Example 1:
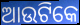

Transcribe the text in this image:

ଆଉଟିକେ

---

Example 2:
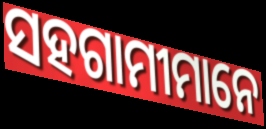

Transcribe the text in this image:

ସହଗାମୀମାନେ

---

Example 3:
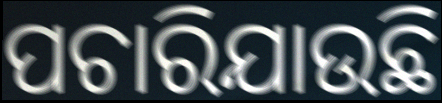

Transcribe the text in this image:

ପଚାରିଯାଉଛି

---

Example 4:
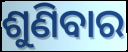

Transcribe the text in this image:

ଶୁଣିବାର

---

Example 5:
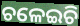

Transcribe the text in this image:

ଚଳେଇଚି